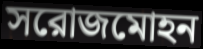
সরোজমোহন